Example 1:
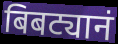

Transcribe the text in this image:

बिबट्यानं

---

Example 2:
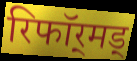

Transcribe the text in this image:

रिफॉर्मड्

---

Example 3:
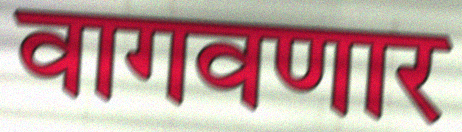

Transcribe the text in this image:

वागवणार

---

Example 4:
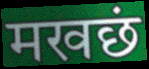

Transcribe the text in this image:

मखछं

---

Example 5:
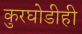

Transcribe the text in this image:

कुरघोडीही